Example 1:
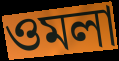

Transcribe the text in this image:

ওমলা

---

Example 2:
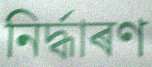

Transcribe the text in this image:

নিৰ্দ্ধাৰণ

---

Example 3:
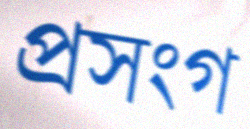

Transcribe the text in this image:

প্ৰসংগ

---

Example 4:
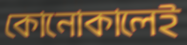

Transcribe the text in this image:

কোনোকালেই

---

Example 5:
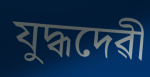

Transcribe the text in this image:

যুদ্ধদেৱী